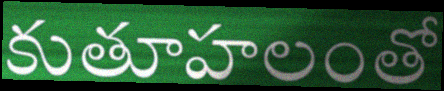
కుతూహలంతో